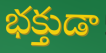
భక్తుడా